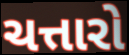
ચત્તારો